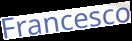
Francesco